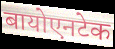
बायोएनटेक